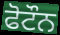
ਫੋਟੌਨ